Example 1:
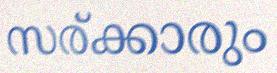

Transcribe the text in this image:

സര്ക്കാരും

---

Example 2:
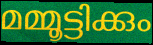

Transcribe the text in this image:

മമ്മൂട്ടിക്കും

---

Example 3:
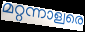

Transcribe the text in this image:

മറ്റന്നാള്വരെ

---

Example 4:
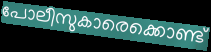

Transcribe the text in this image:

പോലീസുകാരെക്കൊണ്ട്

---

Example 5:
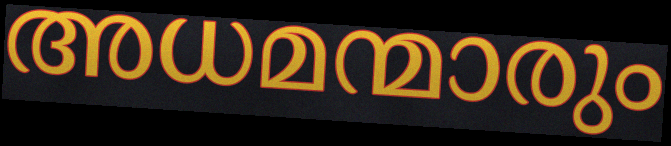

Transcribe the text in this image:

അധമന്മാരും